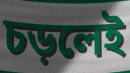
চড়লেই